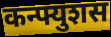
कन्फ्युशस